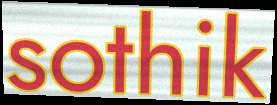
sothik